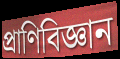
প্রাণিবিজ্ঞান